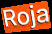
Roja